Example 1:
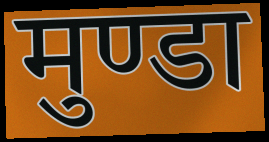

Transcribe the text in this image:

मुण्डा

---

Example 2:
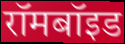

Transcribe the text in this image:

रॉमबॉइड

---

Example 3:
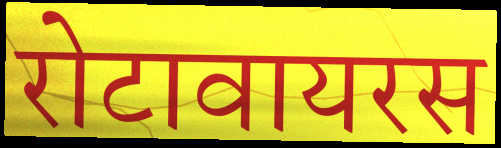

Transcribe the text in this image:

रोटावायरस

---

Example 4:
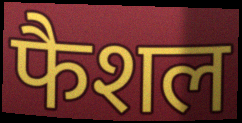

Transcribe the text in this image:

फैशल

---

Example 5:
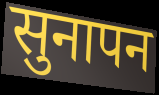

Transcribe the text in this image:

सुनापन